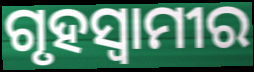
ଗୃହସ୍ୱାମୀର